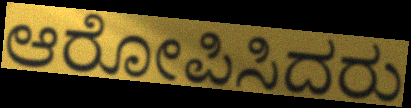
ಆರೋಪಿಸಿದರು